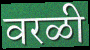
वरळी